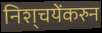
निश्चयेंकरुन